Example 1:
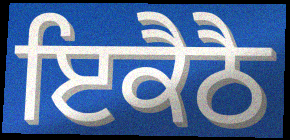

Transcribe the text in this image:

ਇਕੈਠੈ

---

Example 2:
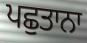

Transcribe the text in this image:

ਪਛੁਤਾਨਾ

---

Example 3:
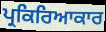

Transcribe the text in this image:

ਪ੍ਰਕਿਰਿਆਕਾਰ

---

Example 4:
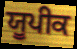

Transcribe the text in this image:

ਯੂਪੀਕ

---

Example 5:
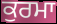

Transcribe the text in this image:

ਕੁਰਮਾ